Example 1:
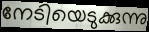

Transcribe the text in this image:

നേടിയെടുക്കുന്നു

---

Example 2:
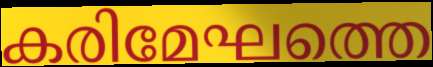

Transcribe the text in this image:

കരിമേഘത്തെ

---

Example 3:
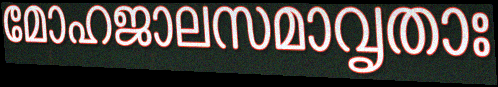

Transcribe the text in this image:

മോഹജാലസമാവൃതാഃ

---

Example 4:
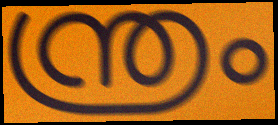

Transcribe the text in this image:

ന്ത്രം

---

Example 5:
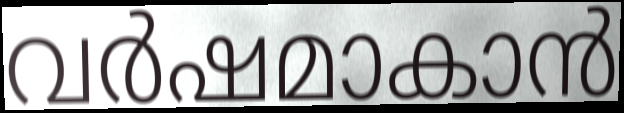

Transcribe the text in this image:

വർഷമാകാൻ